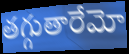
తగ్గుతారేమో